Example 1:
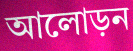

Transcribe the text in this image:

আলোড়ন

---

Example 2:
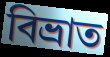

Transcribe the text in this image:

বিভ্ৰাত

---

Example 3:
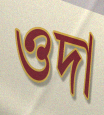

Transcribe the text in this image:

ওদা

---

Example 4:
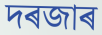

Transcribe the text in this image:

দৰজাৰ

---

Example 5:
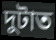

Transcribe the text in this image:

দুটাত